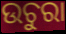
ଉଚୁରା